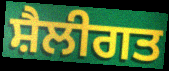
ਸ਼ੈਲੀਗਤ